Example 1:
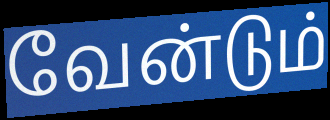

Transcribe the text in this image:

வேன்டும்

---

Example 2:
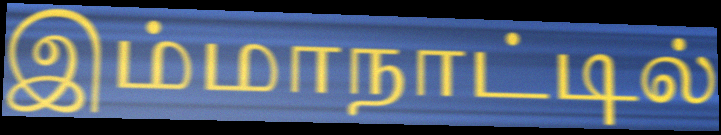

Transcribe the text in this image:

இம்மாநாட்டில்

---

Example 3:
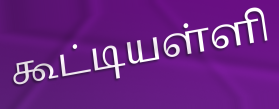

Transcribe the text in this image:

கூட்டியள்ளி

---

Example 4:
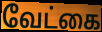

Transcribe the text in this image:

வேட்கை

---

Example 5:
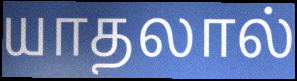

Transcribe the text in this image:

யாதலால்